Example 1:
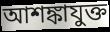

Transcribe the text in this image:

আশঙ্কাযুক্ত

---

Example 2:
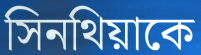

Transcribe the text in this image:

সিনথিয়াকে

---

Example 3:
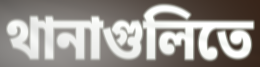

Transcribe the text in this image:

থানাগুলিতে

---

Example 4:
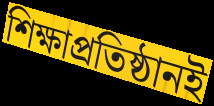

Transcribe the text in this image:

শিক্ষাপ্রতিষ্ঠানই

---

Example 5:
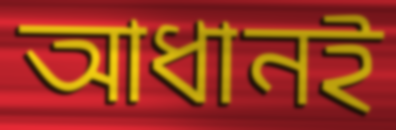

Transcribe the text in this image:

আধানই